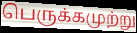
பெருக்கமுற்று